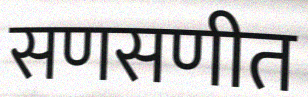
सणसणीत